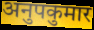
अनुपकुमार